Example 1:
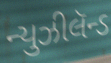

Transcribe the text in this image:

ન્યુઝીલૅન્ડ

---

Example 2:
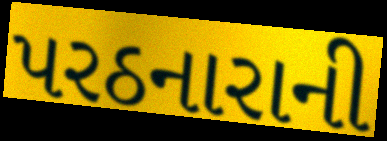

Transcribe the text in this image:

પરઠનારાની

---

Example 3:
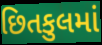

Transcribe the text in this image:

છિતકુલમાં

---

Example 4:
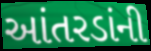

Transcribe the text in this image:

આંતરડાંની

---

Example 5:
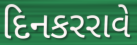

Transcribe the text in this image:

દિનકરરાવે